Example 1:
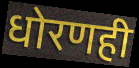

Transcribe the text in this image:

धोरणही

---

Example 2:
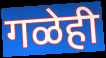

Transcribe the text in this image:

गळेही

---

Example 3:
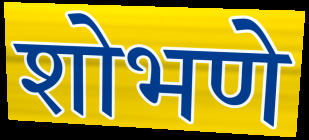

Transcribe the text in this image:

शोभणे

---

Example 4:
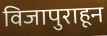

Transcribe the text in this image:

विजापुराहून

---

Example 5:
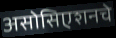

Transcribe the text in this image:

असोसिएशनचे